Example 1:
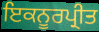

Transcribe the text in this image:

ਇਕਨੂਰਪ੍ਰੀਤ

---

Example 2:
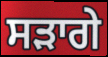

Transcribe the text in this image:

ਸੜਾਗੇ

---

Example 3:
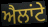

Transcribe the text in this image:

ਐਲਾਂਟੇ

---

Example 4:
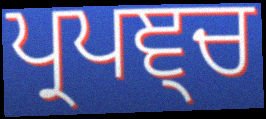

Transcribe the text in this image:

ਪ੍ਰਪਞ੍ਚ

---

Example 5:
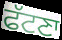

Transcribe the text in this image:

ਫੱਟਣਾ